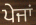
ਪੇਜਾਂ